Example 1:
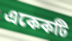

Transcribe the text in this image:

একেকটি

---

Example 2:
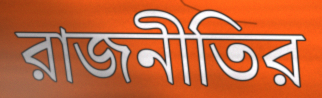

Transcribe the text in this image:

রাজনীতির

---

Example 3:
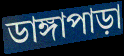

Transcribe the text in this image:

ডাঙ্গাপাড়া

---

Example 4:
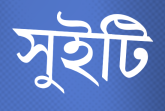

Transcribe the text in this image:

সুইটি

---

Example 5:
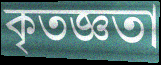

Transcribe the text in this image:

কৃতজ্ঞতা